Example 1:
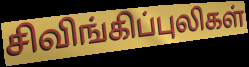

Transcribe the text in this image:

சிவிங்கிப்புலிகள்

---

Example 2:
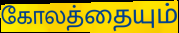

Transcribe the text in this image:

கோலத்தையும்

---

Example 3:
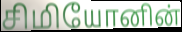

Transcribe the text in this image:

சிமியோனின்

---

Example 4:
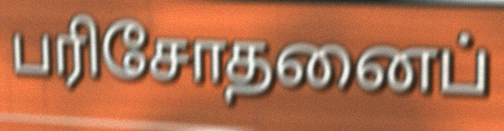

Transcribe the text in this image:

பரிசோதனைப்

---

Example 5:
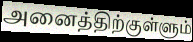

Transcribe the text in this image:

அனைத்திற்குள்ளும்